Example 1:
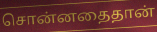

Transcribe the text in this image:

சொன்னதைதான்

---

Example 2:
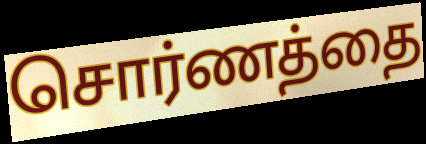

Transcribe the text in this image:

சொர்ணத்தை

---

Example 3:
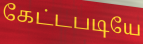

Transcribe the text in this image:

கேட்டபடியே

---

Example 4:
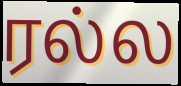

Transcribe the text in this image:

ரல்ல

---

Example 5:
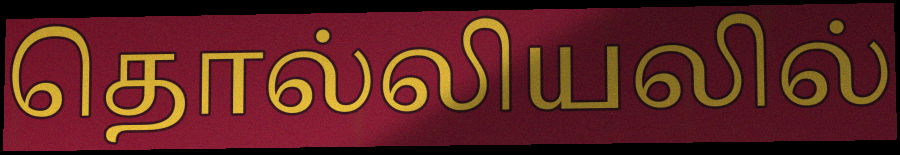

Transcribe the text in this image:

தொல்லியலில்